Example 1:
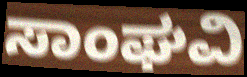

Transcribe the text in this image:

ಸಾಂಘವಿ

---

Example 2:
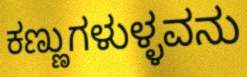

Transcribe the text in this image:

ಕಣ್ಣುಗಳುಳ್ಳವನು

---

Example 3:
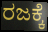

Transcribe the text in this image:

ರಜಕ್ಕೆ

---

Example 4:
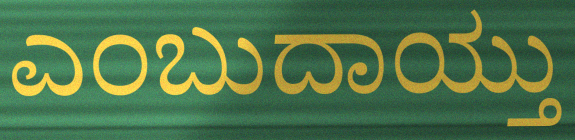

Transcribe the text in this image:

ಎಂಬುದಾಯ್ತು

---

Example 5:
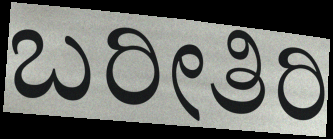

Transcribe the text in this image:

ಬರೀತಿರಿ